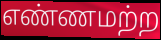
எண்ணமற்ற